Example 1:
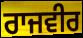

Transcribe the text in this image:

ਰਾਜਵੀਰ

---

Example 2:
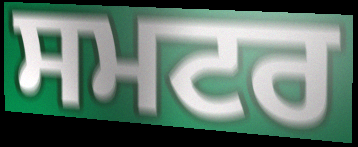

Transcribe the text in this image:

ਸਮਟਰ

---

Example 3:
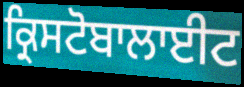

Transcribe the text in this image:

ਕ੍ਰਿਸਟੋਬਾਲਾਈਟ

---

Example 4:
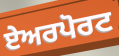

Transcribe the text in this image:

ਏਅਰਪੋਰਟ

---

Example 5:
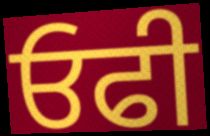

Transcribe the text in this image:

ਓਫੀ